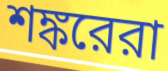
শঙ্করেরা